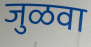
जुळवा